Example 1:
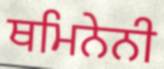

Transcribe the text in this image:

ਥਮਿਨੇਨੀ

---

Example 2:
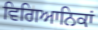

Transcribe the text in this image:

ਵਿਗਿਆਨਿਕਾਂ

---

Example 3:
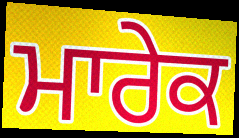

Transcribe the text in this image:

ਮਾਰੇਕ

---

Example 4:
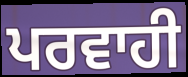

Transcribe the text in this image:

ਪਰਵਾਹੀ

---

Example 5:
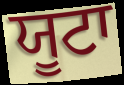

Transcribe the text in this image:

ਯੂਟਾ